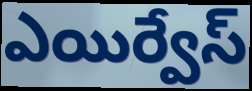
ఎయిర్వేస్